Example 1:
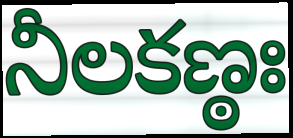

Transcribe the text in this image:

నీలకణ్ఠః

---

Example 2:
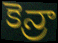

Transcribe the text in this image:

కెన్రా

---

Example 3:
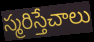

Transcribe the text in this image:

స్మరిస్తేచాలు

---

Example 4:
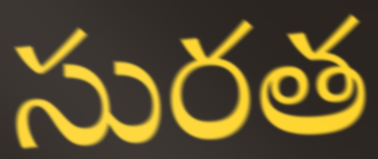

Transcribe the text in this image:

సురత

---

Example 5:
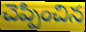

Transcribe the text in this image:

చెప్పించిన